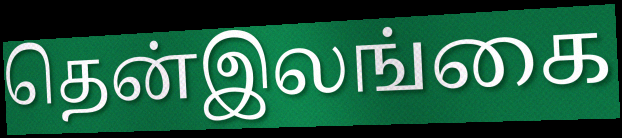
தென்இலங்கை